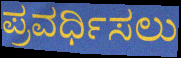
ಪ್ರವರ್ಧಿಸಲು